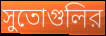
সুতোগুলির